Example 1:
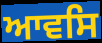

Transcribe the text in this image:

ਆਵਸਿ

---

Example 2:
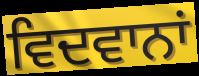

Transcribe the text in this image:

ਵਿਦਵਾਨਾਂ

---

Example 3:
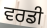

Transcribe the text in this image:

ਵਰਡੀ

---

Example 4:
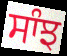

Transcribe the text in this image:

ਸਾੰਝ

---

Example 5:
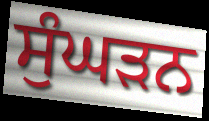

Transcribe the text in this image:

ਸੁੰਘੜਨ